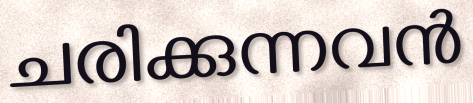
ചരിക്കുന്നവൻ